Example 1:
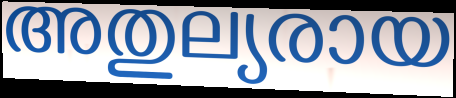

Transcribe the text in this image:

അതുല്യരായ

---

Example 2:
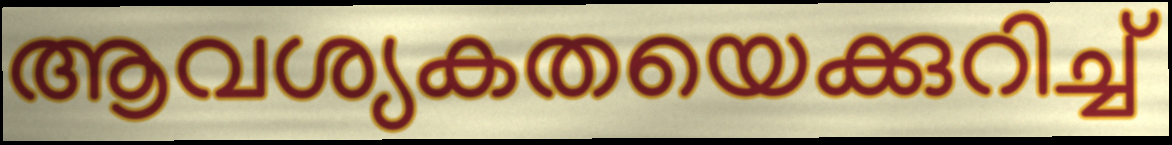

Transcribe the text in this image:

ആവശ്യകതയെക്കുറിച്ച്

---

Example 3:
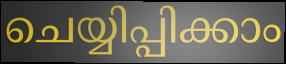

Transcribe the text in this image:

ചെയ്യിപ്പിക്കാം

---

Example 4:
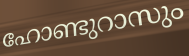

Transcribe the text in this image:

ഹോണ്ടുറാസും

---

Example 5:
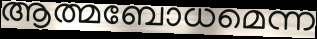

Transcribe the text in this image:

ആത്മബോധമെന്ന